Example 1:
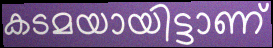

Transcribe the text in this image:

കടമയായിട്ടാണ്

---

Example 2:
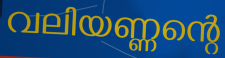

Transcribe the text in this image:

വലിയണ്ണന്റെ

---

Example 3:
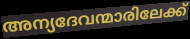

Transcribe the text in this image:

അന്യദേവന്മാരിലേക്ക്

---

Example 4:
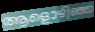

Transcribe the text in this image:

ആളൊഴിഞ്ഞ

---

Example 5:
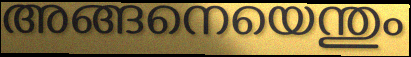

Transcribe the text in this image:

അങ്ങനെയെന്തും